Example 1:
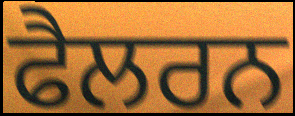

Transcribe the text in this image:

ਫੈਲਰਨ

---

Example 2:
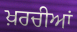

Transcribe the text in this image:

ਖ਼ਰਚੀਆਂ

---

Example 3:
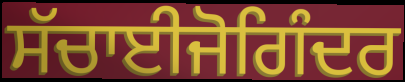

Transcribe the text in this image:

ਸੱਚਾਈਜੋਗਿੰਦਰ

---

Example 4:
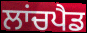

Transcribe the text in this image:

ਲਾਂਚਪੈਡ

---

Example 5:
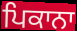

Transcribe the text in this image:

ਪਿਕਾਨਾ